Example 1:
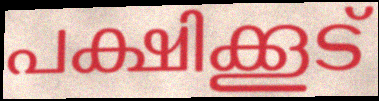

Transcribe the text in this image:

പക്ഷിക്കൂട്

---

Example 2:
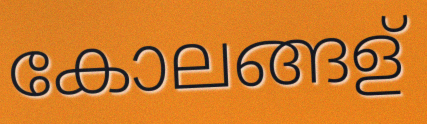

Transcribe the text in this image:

കോലങ്ങള്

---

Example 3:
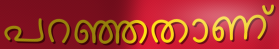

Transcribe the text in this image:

പറഞ്ഞതാണ്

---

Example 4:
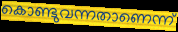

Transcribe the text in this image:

കൊണ്ടുവന്നതാണെന്ന്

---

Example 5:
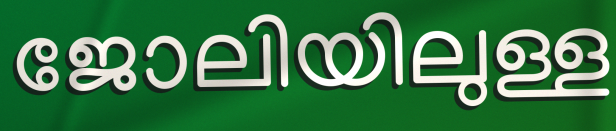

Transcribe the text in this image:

ജോലിയിലുള്ള